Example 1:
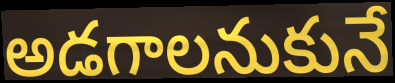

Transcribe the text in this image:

అడగాలనుకునే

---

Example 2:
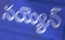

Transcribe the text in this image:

నయ్యెన్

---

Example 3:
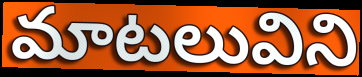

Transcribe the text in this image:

మాటలువిని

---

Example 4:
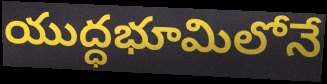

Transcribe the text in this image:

యుద్ధభూమిలోనే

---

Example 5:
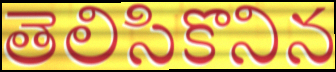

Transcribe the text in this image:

తెలిసికొనిన